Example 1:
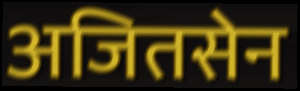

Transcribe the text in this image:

अजितसेन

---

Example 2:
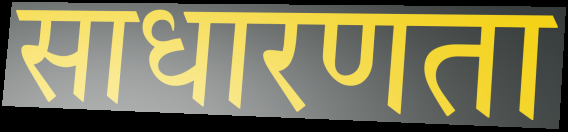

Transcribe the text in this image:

साधारणता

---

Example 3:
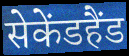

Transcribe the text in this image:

सेकेंडहैंड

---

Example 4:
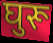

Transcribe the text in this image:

घुरू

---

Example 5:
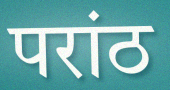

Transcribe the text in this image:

परांठ